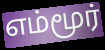
எம்மூர்